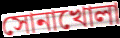
সোনাখোলা